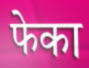
फेका